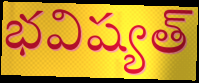
భవిష్యత్